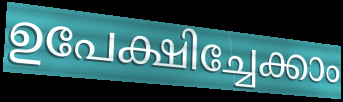
ഉപേക്ഷിച്ചേക്കാം